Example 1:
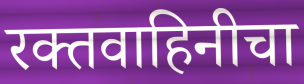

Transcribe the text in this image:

रक्तवाहिनीचा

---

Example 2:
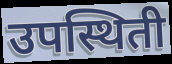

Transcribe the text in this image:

उपस्थिती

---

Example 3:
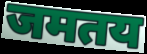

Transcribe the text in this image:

जमतय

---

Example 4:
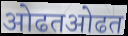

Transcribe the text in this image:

ओढतओढत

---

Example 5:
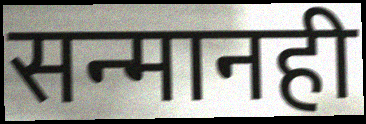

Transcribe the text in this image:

सन्मानही